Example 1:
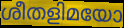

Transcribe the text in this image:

ശീതളിമയോ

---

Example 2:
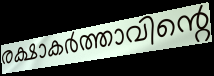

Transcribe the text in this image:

രക്ഷാകർത്താവിന്റെ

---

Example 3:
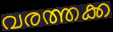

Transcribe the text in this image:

വരത്തക്ക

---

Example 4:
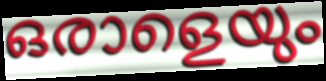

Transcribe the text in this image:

ഒരാളെയും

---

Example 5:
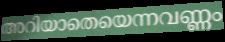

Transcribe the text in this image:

അറിയാതെയെന്നവണ്ണം